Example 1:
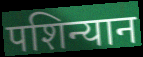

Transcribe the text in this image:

पशिन्यान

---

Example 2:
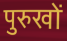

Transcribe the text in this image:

पुरुखों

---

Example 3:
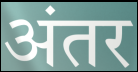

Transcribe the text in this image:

अंतर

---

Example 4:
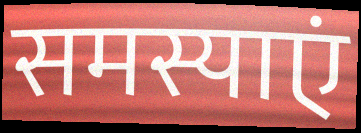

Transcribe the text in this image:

समस्याएं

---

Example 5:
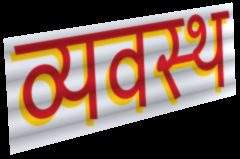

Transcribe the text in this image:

व्यवस्थ